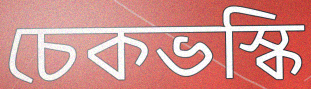
চেকভস্কি